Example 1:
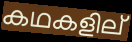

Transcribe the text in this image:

കഥകളില്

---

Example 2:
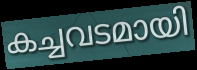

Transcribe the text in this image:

കച്ചവടമായി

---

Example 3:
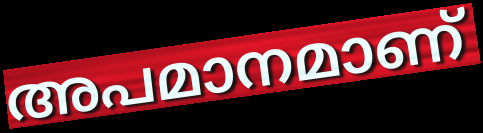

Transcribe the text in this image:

അപമാനമാണ്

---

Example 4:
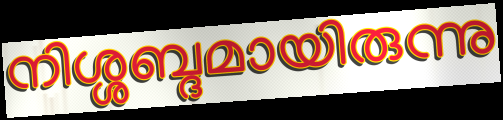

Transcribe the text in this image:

നിശ്ശബ്ദമായിരുന്നു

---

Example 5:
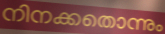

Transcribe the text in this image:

നിനക്കതൊന്നും